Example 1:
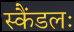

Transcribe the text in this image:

स्कैंडलः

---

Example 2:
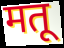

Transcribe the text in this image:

मतू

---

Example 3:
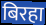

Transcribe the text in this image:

बिरहा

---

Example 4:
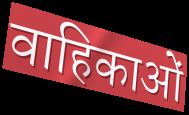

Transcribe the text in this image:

वाहिकाओं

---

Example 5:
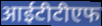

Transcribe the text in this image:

आईटीटीएफ